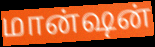
மான்ஷன்